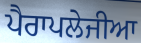
ਪੈਰਾਪਲੇਜੀਆ